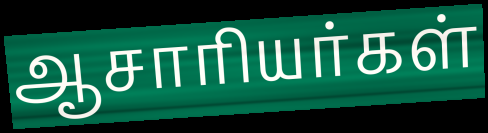
ஆசாரியர்கள்